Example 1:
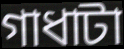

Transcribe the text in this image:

গাধাটা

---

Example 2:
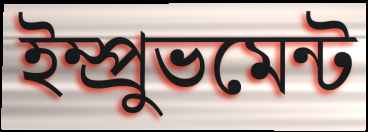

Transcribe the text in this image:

ইম্প্রুভমেন্ট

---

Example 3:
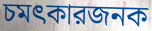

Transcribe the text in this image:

চমৎকারজনক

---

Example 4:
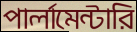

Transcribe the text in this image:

পার্লামেন্টারি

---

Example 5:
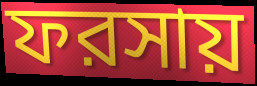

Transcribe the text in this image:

ফরসায়